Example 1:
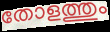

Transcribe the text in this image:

തോളത്തും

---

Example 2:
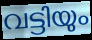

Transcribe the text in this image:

വട്ടിയും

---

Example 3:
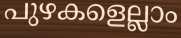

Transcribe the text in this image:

പുഴകളെല്ലാം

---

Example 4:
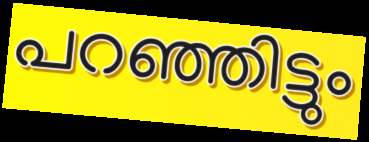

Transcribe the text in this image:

പറഞ്ഞിട്ടും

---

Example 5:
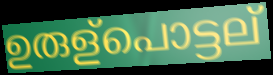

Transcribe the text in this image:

ഉരുള്പൊട്ടല്